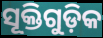
ସୂକ୍ତିଗୁଡ଼ିକ